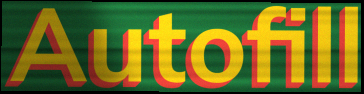
Autofill